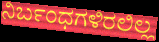
ನಿರ್ಬಂಧಗಳಿರಲಿಲ್ಲ